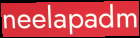
neelapadm